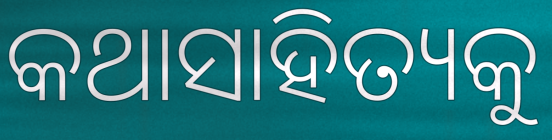
କଥାସାହିତ୍ୟକୁ